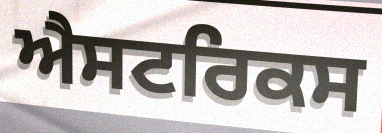
ਐਸਟਰਿਕਸ